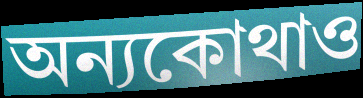
অন্যকোথাও